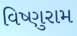
વિષ્ણુરામ